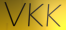
VKK